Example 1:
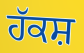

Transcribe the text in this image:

ਹੱਕਸ਼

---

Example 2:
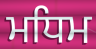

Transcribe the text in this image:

ਮਧਿਮ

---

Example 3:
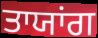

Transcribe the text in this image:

ਤਾਯਾਂਗ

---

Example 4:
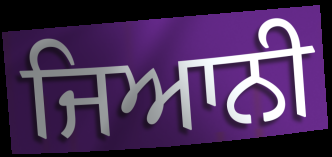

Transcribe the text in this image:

ਜਿਆਨੀ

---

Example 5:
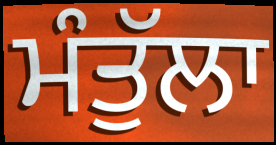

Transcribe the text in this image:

ਮੰਤੁੱਲਾ